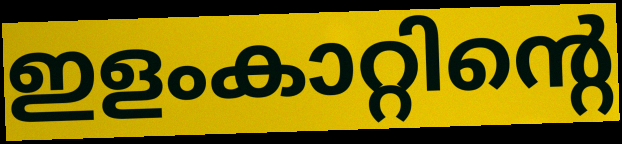
ഇളംകാറ്റിന്റെ